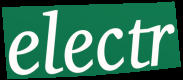
electr